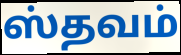
ஸ்தவம்